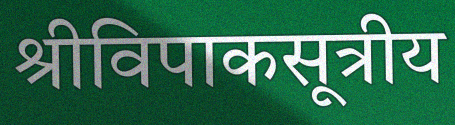
श्रीविपाकसूत्रीय